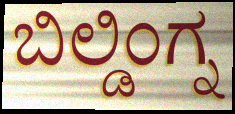
ಬಿಲ್ಡಿಂಗ್ನ